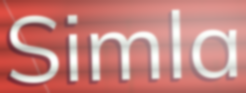
Simla